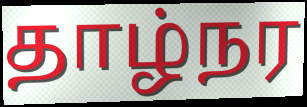
தாழ்நர